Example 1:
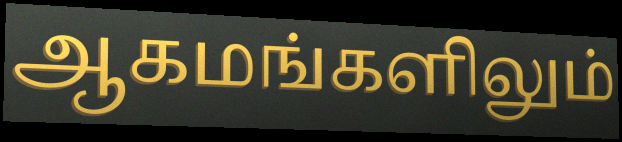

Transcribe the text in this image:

ஆகமங்களிலும்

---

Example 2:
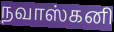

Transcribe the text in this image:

நவாஸ்கனி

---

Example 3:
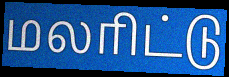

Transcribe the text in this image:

மலரிட்டு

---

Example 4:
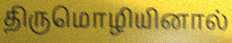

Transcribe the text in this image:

திருமொழியினால்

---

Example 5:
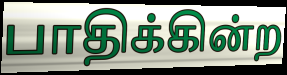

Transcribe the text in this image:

பாதிக்கின்ற